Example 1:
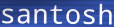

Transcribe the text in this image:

santosh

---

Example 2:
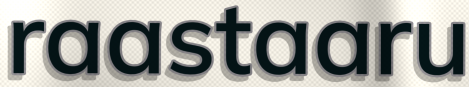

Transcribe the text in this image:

raastaaru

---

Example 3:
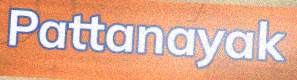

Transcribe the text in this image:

Pattanayak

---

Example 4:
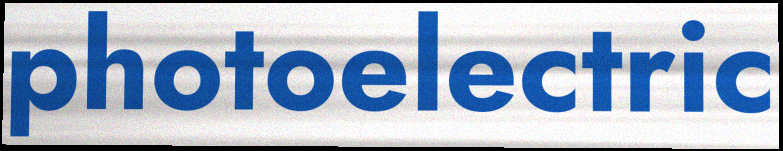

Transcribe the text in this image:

photoelectric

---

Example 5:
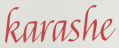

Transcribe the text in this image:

karashe